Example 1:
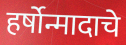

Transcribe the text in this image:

हर्षोन्मादाचे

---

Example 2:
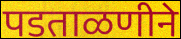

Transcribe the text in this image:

पडताळणीने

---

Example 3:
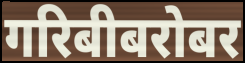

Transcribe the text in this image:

गरिबीबरोबर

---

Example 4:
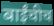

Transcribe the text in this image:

बाईंचीच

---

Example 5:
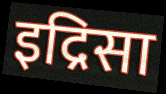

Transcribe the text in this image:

इद्रिसा